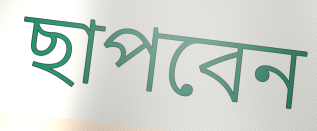
ছাপবেন